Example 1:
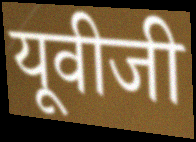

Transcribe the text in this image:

यूवीजी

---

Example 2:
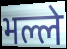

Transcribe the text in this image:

भल्ले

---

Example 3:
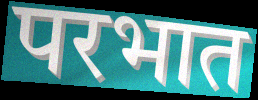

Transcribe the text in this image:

परभात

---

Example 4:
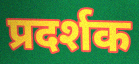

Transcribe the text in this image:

प्रदर्शक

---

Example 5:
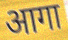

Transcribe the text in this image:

आगा